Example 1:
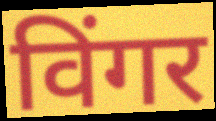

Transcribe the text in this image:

विंगर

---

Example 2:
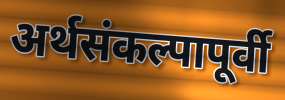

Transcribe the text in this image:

अर्थसंकल्पापूर्वी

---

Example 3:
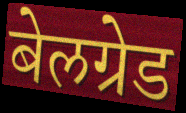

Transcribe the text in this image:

बेलग्रेड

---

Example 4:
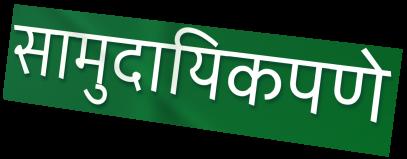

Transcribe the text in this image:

सामुदायिकपणे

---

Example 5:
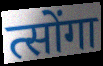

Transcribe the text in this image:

त्सोंगा